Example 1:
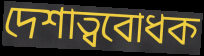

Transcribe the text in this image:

দেশাত্ববোধক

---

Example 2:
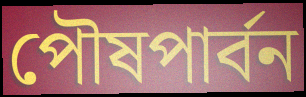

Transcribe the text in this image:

পৌষপার্বন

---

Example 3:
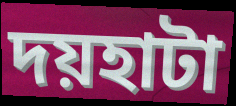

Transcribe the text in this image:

দয়হাটা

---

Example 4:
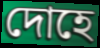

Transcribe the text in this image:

দোহে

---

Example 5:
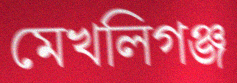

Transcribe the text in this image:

মেখলিগঞ্জ